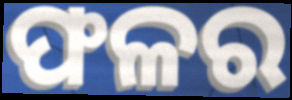
ଫଳର